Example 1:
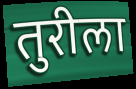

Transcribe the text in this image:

तुरीला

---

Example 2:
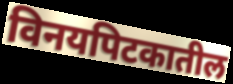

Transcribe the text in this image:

विनयपिटकातील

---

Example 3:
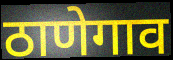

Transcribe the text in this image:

ठाणेगाव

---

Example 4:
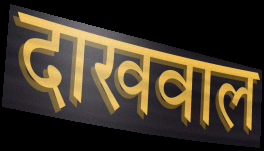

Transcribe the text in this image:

दाखवाल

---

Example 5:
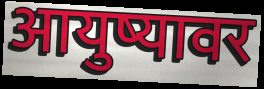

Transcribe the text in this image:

आयुष्यावर